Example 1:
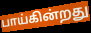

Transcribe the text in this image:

பாய்கின்றது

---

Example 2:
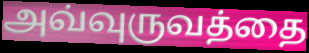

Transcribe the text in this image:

அவ்வுருவத்தை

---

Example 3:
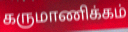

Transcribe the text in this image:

கருமாணிக்கம்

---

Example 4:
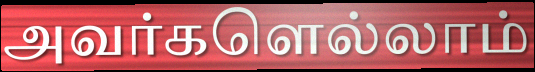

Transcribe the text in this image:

அவர்களெல்லாம்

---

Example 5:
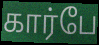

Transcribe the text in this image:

கார்பே